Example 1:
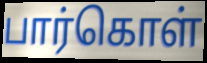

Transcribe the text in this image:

பார்கொள்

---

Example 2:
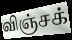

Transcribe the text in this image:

விஞ்சக்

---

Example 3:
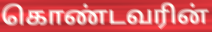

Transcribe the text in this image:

கொண்டவரின்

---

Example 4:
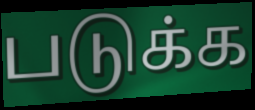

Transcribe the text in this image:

படுக்க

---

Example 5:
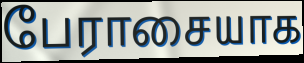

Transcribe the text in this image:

பேராசையாக